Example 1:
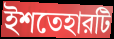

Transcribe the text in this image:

ইশতেহারটি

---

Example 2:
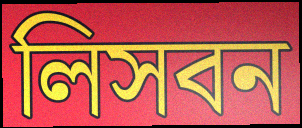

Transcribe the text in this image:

লিসবন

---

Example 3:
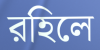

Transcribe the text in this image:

রহিলে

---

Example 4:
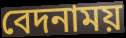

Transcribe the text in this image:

বেদনাময়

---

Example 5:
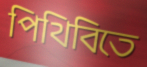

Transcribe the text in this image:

পিথিবিতে